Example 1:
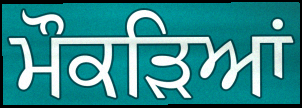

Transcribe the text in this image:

ਮੌਕੜਿਆਂ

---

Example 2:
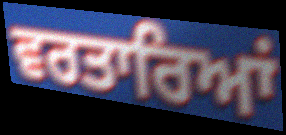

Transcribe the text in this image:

ਵਰਤਾਰਿਆਂ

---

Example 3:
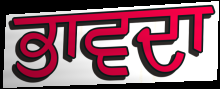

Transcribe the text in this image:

ਭਾਵਦਾ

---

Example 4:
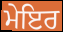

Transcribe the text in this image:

ਮੇਇਰ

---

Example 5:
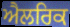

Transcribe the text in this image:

ਐਲਰਿਕ